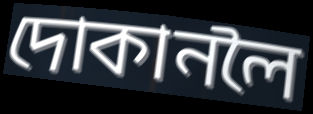
দোকানলৈ